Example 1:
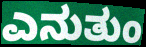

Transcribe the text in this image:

ಎನುತುಂ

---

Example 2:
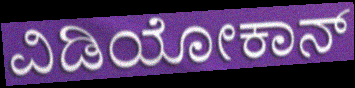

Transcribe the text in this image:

ವಿಡಿಯೋಕಾನ್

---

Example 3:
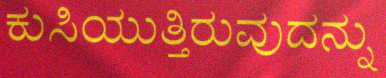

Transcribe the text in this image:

ಕುಸಿಯುತ್ತಿರುವುದನ್ನು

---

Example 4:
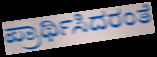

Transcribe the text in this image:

ಪ್ರಾರ್ಥಿಸಿದರಂತೆ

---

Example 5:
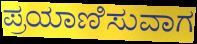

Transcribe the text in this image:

ಪ್ರಯಾಣಿಸುವಾಗ